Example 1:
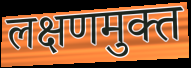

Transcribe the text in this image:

लक्षणमुक्त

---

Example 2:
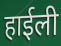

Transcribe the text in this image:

हाईली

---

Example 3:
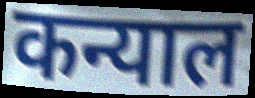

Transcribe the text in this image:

कन्याल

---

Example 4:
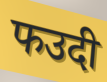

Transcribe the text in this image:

फउदी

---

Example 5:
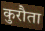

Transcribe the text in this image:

कुरौता